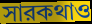
সারকথাও